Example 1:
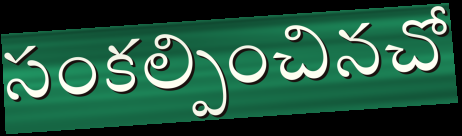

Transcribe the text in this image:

సంకల్పించినచో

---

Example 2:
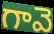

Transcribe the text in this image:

గావె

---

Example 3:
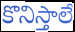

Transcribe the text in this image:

కొనిస్తాలే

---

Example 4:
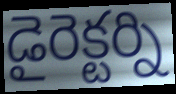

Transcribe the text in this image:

డైరెక్టర్ని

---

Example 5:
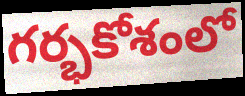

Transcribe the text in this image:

గర్భకోశంలో